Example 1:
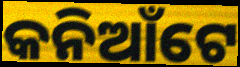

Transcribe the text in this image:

କନିଆଁଟେ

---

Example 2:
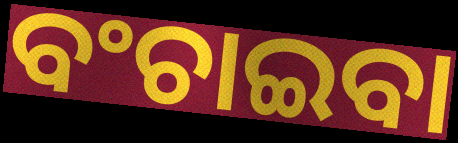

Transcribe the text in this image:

ବଂଚାଇବା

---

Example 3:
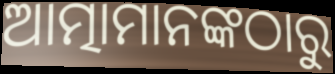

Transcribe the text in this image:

ଆତ୍ମାମାନଙ୍କଠାରୁ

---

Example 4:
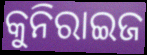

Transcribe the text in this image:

କୁନିରାଇଜ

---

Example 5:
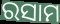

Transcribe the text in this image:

ରସାମ